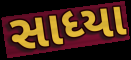
સાધ્યા